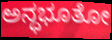
ಅನ್ಧಭೂತೋ